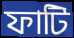
ফাটি